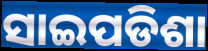
ସାଇପଡିଶା